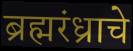
ब्रह्मरंध्राचे